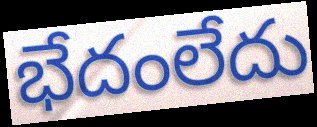
భేదంలేదు